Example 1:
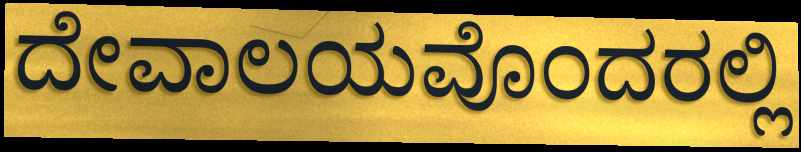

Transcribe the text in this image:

ದೇವಾಲಯವೊಂದರಲ್ಲಿ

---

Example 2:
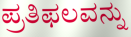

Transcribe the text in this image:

ಪ್ರತಿಫಲವನ್ನು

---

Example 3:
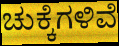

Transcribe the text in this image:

ಚುಕ್ಕೆಗಳಿವೆ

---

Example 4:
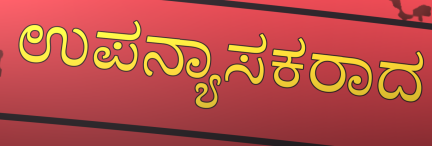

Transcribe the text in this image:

ಉಪನ್ಯಾಸಕರಾದ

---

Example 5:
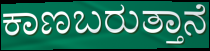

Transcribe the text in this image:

ಕಾಣಬರುತ್ತಾನೆ